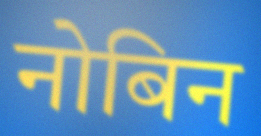
नोबिन